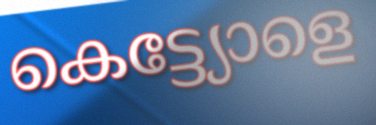
കെട്ട്യോളെ